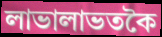
লাভালাভতকৈ